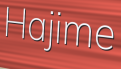
Hajime